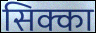
सिक्का